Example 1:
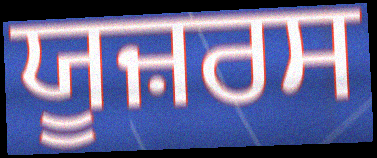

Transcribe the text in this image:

ਯੂਜ਼ਰਸ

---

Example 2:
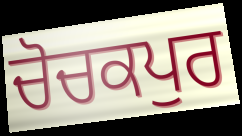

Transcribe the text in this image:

ਚੋਚਕਪੁਰ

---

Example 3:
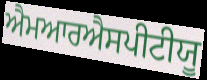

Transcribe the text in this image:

ਐਮਆਰਐਸਪੀਟੀਯੂ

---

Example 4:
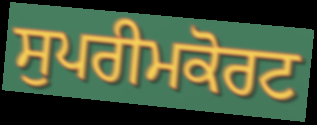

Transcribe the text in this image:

ਸੁਪਰੀਮਕੋਰਟ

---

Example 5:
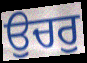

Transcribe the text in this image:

ਉਚਰੁ